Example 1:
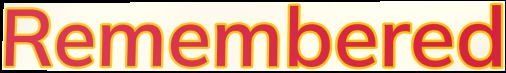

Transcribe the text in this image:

Remembered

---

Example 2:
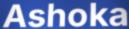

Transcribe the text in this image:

Ashoka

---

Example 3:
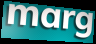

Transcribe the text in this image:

marg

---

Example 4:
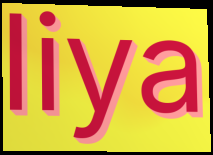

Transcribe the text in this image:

liya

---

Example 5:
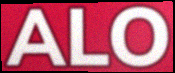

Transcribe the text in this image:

ALO